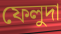
ফেলুদা